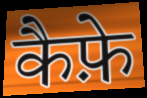
कैफ़े